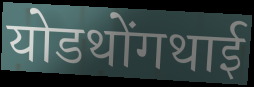
योडथोंगथाई